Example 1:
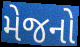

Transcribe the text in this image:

મેજનો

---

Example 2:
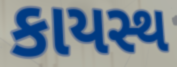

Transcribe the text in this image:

કાયસ્થ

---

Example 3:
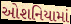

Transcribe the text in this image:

ઓશનિયામાં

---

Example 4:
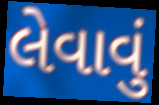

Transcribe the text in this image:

લેવાવું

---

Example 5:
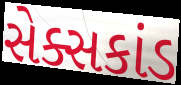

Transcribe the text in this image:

સેક્સકાંડ